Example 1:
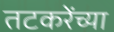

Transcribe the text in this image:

तटकरेंच्या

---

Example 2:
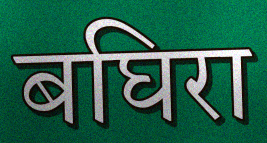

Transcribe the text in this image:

बघिरा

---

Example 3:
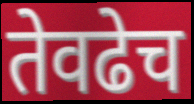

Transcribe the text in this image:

तेवढेच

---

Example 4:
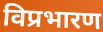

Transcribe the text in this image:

विप्रभारण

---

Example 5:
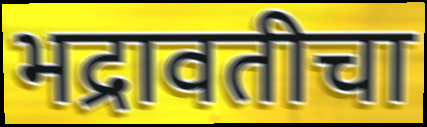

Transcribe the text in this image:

भद्रावतीचा